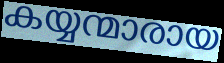
കയ്യന്മാരായ